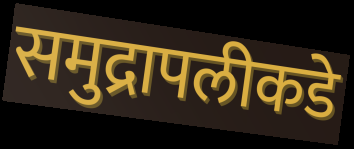
समुद्रापलीकडे